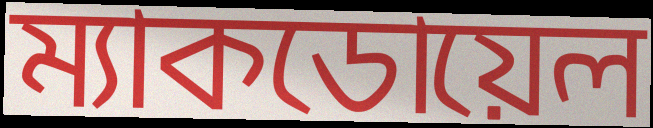
ম্যাকডোয়েল